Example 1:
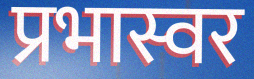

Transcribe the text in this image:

प्रभास्वर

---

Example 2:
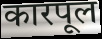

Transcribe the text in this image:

कारपूल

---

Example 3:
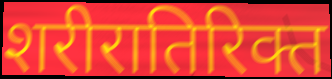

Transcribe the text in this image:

शरीरातिरिक्त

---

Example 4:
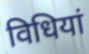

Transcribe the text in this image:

विधियां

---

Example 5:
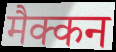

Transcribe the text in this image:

मैक्कन